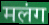
मलंग